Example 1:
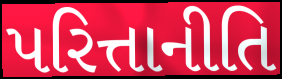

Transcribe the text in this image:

પરિત્તાનીતિ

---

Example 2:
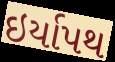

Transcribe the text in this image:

ઇર્યાપથ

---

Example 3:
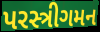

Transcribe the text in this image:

પરસ્ત્રીગમન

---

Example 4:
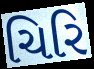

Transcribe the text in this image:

ચિરિ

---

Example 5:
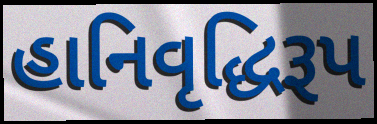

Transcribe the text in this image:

હાનિવૃદ્ધિરૂપ